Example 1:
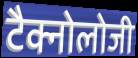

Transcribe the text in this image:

टैक्नोलोजी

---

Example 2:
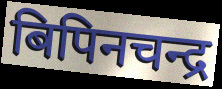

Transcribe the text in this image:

बिपिनचन्द्र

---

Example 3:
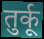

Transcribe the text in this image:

तुर्कू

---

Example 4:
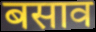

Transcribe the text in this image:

बसाव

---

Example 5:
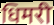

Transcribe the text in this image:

धिमरी